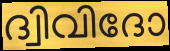
ദ്വിവിദോ